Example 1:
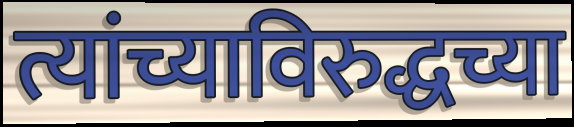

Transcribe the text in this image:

त्यांच्याविरुद्धच्या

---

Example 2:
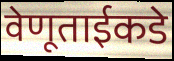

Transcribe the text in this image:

वेणूताईकडे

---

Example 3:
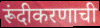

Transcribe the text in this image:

रूंदीकरणाची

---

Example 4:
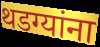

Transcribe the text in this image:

थडग्यांना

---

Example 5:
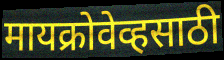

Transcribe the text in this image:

मायक्रोवेव्हसाठी